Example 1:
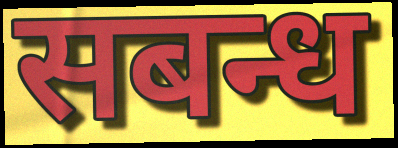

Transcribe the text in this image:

सबन्ध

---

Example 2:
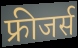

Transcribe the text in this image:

फ्रीजर्स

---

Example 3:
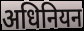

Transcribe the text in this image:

अधिनियन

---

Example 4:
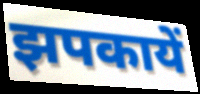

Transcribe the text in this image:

झपकायें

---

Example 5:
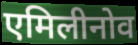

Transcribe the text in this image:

एमिलीनोव